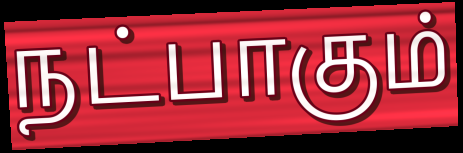
நட்பாகும்